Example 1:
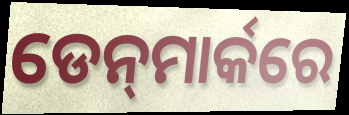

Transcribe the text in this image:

ଡେନ୍‍ମାର୍କରେ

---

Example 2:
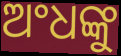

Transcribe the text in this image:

ଅଂଧଙ୍କୁ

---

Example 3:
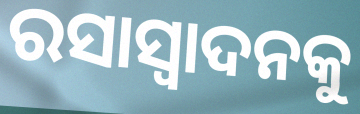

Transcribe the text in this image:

ରସାସ୍ୱାଦନକୁ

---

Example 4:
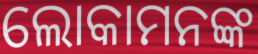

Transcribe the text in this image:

ଲୋକାମନଙ୍କ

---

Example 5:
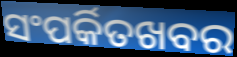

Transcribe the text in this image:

ସଂପର୍କିତଖବର